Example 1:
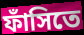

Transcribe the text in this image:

ফাঁসিতে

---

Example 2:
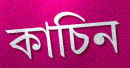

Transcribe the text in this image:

কাচিন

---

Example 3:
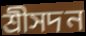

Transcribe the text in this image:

শ্রীসদন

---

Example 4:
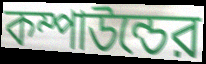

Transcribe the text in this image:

কম্পাউন্ডের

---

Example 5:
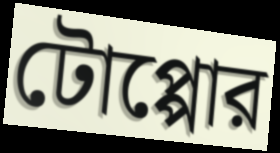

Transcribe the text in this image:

টোপ্পোর